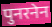
पुनरनेन